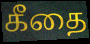
கீதை